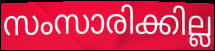
സംസാരിക്കില്ല